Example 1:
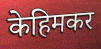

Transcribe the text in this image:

केहिमकर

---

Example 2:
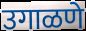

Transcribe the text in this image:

उगाळणे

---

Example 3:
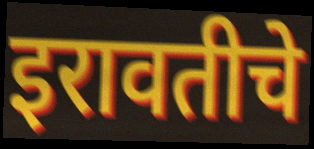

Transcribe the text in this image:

इरावतीचे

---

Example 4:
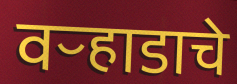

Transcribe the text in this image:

वऱ्हाडाचे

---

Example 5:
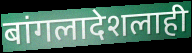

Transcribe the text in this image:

बांगलादेशलाही